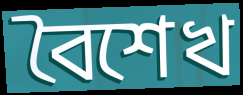
বৈশেখ